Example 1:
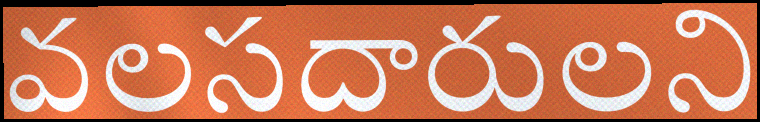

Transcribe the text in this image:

వలసదారులని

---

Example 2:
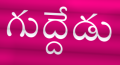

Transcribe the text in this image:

గుద్దేడు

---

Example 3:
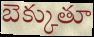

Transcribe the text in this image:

బెక్కుతూ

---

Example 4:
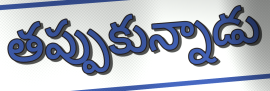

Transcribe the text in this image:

తప్పుకున్నాడు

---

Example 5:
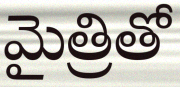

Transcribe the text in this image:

మైత్రితో